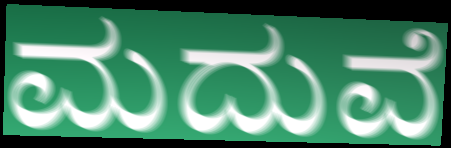
ಮದುವೆ